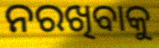
ନରଖିବାକୁ